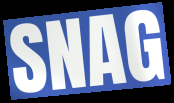
SNAG